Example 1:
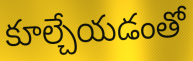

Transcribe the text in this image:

కూల్చేయడంతో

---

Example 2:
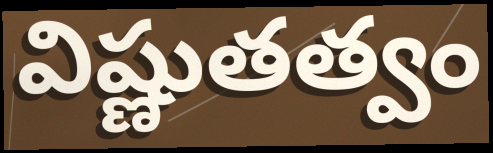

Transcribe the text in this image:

విష్ణుతత్వం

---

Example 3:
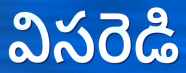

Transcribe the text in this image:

విసరెడి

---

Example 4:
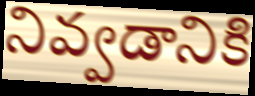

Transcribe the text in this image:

నివ్వడానికి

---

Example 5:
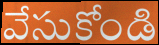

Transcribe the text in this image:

వేసుకోండి